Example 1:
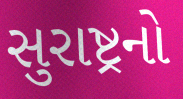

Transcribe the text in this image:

સુરાષ્ટ્રનો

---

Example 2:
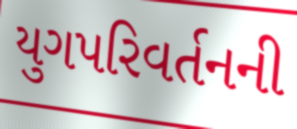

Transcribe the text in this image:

યુગપરિવર્તનની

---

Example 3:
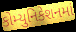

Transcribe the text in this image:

કોમ્યુનિકેશનમાં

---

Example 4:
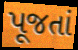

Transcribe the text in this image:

પૂજતાં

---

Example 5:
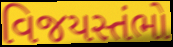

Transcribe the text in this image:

વિજયસ્તંભો